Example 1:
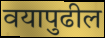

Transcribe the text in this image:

वयापुढील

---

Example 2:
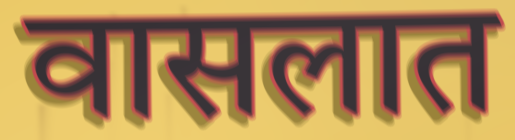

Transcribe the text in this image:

वासलात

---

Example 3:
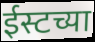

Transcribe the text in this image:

ईस्टच्या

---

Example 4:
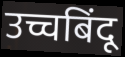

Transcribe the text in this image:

उच्चबिंदू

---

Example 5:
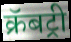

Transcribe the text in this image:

क्रॅबट्री